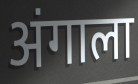
अंगाला